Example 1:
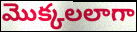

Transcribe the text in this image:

మొక్కలలాగా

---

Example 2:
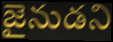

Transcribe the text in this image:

జైనుడని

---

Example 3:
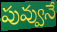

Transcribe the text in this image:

పువ్వునే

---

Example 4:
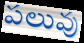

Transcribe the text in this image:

పలువు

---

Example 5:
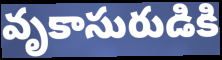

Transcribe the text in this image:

వృకాసురుడికి